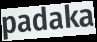
padaka